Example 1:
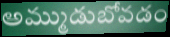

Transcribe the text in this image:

అమ్ముడుబోవడం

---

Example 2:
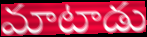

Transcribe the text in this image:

మాటాడు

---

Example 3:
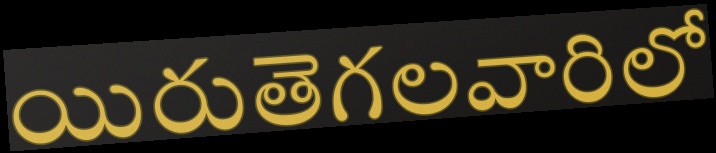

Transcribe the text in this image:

యిరుతెగలవారిలో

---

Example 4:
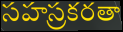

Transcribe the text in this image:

సహస్రకరతా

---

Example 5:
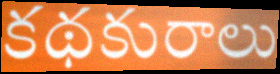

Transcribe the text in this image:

కథకురాలు